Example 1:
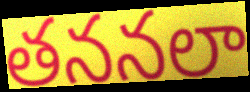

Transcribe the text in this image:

తననలా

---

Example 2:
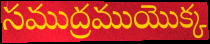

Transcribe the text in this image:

సముద్రముయొక్క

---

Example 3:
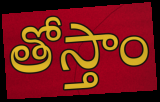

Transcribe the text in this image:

తోస్తాం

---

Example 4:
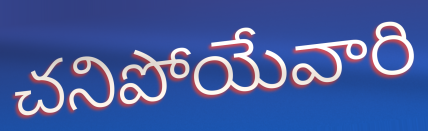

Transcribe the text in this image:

చనిపోయేవారి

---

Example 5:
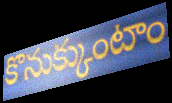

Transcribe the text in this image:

కొనుక్కుంటాం